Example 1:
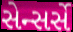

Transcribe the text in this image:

સેન્સર્સે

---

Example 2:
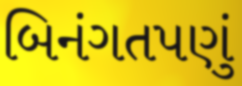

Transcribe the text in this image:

બિનંગતપણું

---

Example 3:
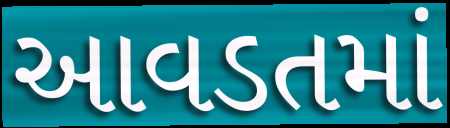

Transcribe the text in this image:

આવડતમાં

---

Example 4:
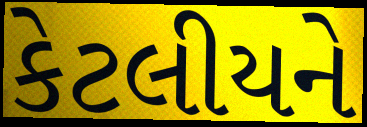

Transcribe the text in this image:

કેટલીયને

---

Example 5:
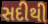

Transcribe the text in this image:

સદીથી